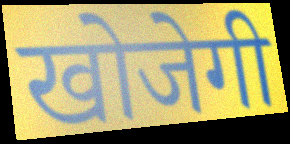
खोजेगी